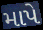
માપે